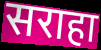
सराहा